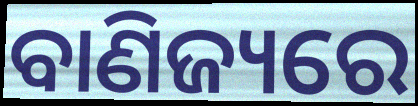
ବାଣିଜ୍ୟରେ